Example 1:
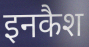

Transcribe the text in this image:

इनकैश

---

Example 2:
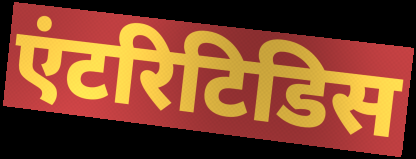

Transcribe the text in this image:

एंटरिटिडिस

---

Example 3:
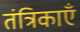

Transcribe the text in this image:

तंत्रिकाएँ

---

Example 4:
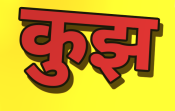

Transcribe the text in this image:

कुझ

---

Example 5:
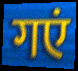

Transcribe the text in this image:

गएं